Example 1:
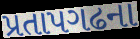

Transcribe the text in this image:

પ્રતાપગઢના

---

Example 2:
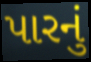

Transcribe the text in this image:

પારનું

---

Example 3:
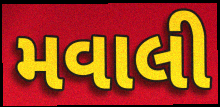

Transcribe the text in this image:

મવાલી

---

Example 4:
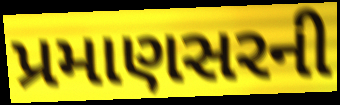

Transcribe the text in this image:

પ્રમાણસરની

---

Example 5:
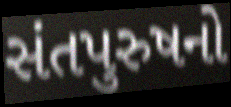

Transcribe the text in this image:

સંતપુરુષનો